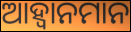
ଆହ୍ୱାନମାନ